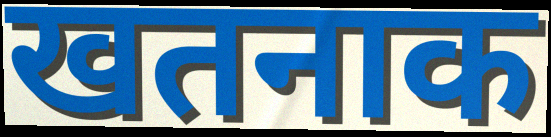
खतनाक